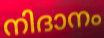
നിദാനം